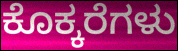
ಕೊಕ್ಕರೆಗಳು